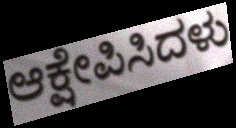
ಆಕ್ಷೇಪಿಸಿದಳು